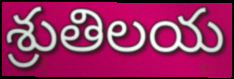
శ్రుతిలయ